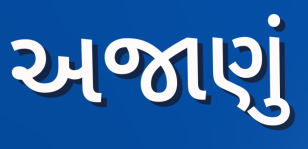
અજાણું